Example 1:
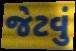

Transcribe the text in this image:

જેટવું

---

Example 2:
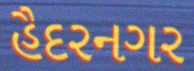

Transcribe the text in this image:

હૈદરનગર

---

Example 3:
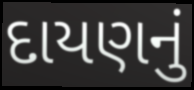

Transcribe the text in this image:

દાયણનું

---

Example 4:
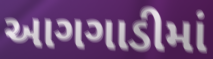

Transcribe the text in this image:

આગગાડીમાં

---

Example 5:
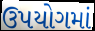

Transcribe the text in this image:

ઉપયોગમાં